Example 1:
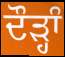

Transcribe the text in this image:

ਦੌੜ੍ਹਾੰ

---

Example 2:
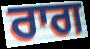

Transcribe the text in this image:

ਰਾਗ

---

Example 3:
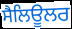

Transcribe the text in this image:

ਸੈਲਿਊਲਰ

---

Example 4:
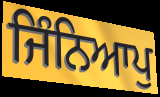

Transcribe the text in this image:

ਜਿੰਨਿਆਪੁ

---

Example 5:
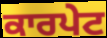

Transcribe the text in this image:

ਕਾਰਪੇਟ